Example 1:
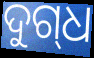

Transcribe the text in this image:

ଦୁଗ୍‌ଧ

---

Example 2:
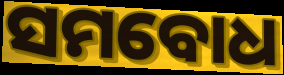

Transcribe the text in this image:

ସମବୋଧ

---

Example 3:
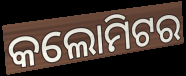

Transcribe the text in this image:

କଲୋମିଟର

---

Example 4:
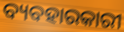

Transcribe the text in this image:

ବ୍ୟବହାରକାରୀ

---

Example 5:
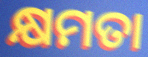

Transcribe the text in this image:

କ୍ଷମତା